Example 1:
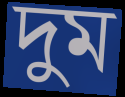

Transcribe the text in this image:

দুম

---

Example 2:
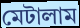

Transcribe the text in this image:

মেটালাম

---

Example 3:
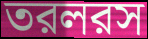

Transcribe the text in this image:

তরলরস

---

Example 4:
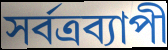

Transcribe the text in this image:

সর্বত্রব্যাপী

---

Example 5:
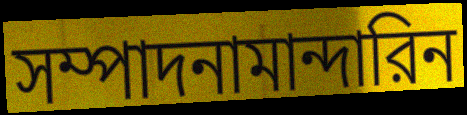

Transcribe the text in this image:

সম্পাদনামান্দারিন